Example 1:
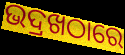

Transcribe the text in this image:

ଭଦ୍ରଖଠାରେ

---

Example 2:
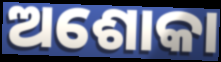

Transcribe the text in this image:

ଅଶୋକା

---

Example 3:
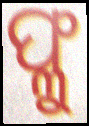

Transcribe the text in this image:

ଫ୍ଳୁ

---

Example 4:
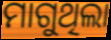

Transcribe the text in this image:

ମାଗୁଥିଲା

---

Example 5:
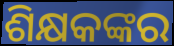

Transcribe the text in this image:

ଶିକ୍ଷକଙ୍କର